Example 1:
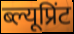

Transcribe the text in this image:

ब्ल्यूप्रिंट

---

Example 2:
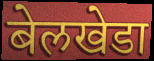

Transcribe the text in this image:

बेलखेडा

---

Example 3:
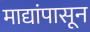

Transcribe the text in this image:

माद्यांपासून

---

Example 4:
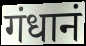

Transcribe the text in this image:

गंधानं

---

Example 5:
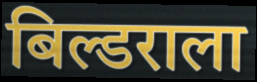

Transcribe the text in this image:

बिल्डराला